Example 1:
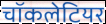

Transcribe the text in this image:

चॉकलेटियर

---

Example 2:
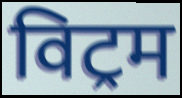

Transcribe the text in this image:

विट्रम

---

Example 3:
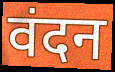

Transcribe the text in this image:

वंदन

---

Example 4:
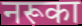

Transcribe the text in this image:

नरूका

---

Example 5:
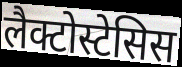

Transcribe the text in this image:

लैक्टोस्टेसिस